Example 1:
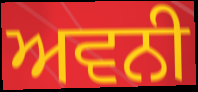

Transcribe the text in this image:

ਅਵਨੀ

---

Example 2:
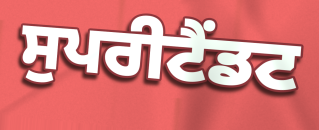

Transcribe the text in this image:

ਸੁਪਰੀਟੈਂਡਟ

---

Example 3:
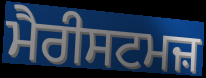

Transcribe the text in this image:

ਮੈਰੀਸਟਮਜ਼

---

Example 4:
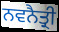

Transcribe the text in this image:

ਨਵਨੈਤ੍ਰੀ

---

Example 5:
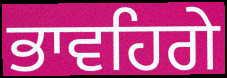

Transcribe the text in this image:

ਭਾਵਹਿਗੇ